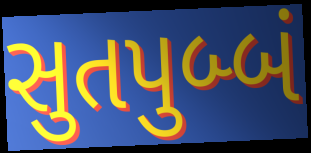
સુતપુબ્બં